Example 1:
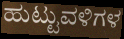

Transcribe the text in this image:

ಹುಟ್ಟುವಳಿಗಳ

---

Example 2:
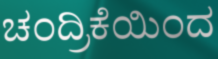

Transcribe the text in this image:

ಚಂದ್ರಿಕೆಯಿಂದ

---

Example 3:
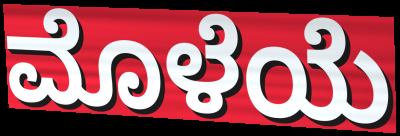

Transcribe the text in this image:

ಮೊಳೆಯೆ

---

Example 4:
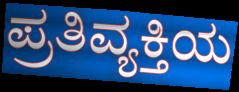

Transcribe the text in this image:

ಪ್ರತಿವ್ಯಕ್ತಿಯ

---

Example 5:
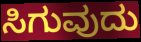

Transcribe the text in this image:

ಸಿಗುವುದು